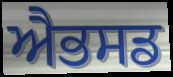
ਐਭਸਡ